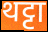
थट्टा